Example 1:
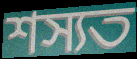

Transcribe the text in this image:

শস্যত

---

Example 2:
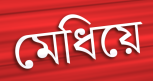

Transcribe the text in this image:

মেধিয়ে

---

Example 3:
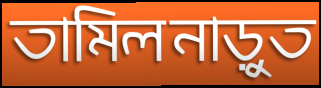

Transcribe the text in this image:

তামিলনাড়ুত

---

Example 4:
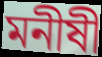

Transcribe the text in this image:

মনীষী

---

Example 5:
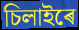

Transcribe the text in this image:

চিলাইৰে